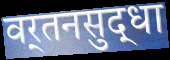
वर्तनसुद्धा